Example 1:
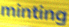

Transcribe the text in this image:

minting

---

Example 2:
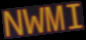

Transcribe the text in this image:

NWMI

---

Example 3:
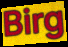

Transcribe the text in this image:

Birg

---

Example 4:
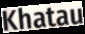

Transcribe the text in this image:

Khatau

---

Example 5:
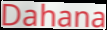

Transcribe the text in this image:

Dahana